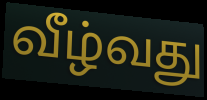
வீழ்வது